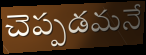
చెప్పడమనే